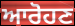
ਆਰੋਹਣ